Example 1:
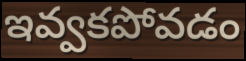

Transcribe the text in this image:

ఇవ్వకపోవడం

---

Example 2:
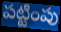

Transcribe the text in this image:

పట్టింపు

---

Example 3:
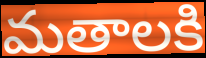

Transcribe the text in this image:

మతాలకి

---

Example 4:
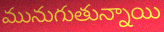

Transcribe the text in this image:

మునుగుతున్నాయి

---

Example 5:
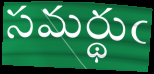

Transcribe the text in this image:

సమర్థుఁ